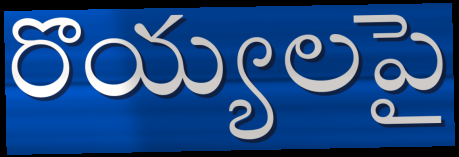
రొయ్యలపై